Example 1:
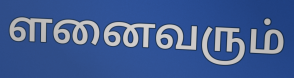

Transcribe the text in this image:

ளனைவரும்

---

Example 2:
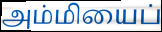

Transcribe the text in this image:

அம்மியைப்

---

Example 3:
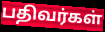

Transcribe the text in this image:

பதிவர்கள்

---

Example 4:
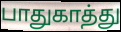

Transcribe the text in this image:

பாதுகாத்து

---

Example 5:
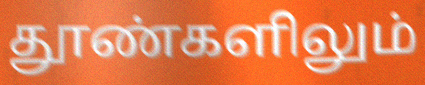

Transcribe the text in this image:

தூண்களிலும்